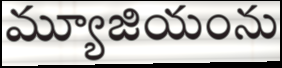
మ్యూజియంను